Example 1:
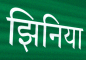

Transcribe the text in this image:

झिनिया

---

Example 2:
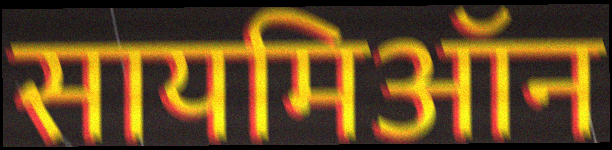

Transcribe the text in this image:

सायमिऑन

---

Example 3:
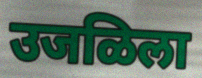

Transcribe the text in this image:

उजळिला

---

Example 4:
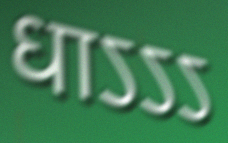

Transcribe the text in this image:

धाऽऽऽ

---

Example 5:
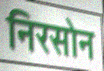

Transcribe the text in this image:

निरसोन